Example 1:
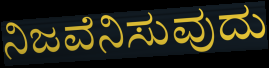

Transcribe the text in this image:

ನಿಜವೆನಿಸುವುದು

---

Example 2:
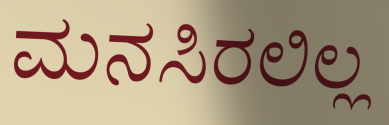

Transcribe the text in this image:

ಮನಸಿರಲಿಲ್ಲ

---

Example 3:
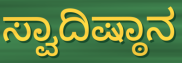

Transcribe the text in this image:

ಸ್ವಾದಿಷ್ಠಾನ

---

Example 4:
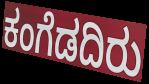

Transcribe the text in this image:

ಕಂಗೆಡದಿರು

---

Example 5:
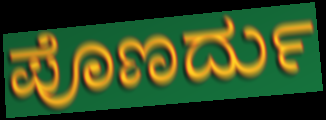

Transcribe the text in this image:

ಪೊಣರ್ದು